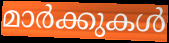
മാർക്കുകൾ